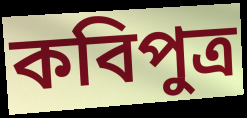
কবিপুত্র